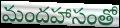
మందహాసంతో